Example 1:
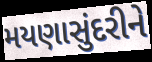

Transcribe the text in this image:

મયણાસુંદરીને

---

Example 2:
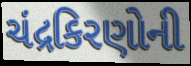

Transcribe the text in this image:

ચંદ્રકિરણોની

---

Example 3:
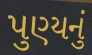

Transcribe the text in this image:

પુણ્યનું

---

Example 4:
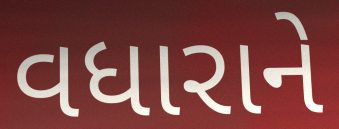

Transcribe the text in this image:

વધારાને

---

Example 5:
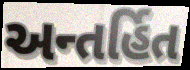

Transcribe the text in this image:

અન્તર્હિત